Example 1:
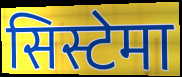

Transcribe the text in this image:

सिस्टेमा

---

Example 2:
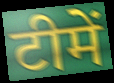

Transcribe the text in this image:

टीमें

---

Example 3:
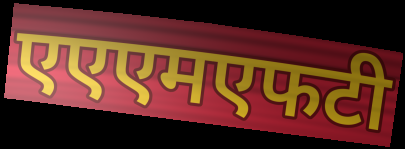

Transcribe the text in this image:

एएएमएफटी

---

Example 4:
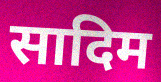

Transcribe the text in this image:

सादिम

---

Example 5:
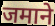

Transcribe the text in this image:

जमाने